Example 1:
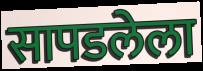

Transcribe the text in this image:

सापडलेला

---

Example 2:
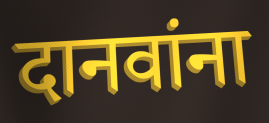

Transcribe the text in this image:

दानवांना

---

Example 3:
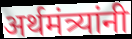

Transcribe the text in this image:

अर्थमंत्र्यांनी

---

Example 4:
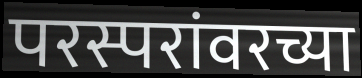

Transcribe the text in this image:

परस्परांवरच्या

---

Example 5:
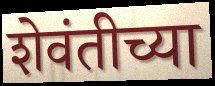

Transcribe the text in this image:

शेवंतीच्या